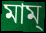
মাম্